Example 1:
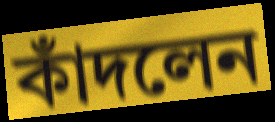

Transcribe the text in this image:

কাঁদলেন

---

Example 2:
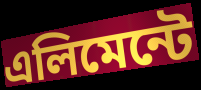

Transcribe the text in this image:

এলিমেন্টে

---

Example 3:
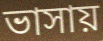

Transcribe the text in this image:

ভাসায়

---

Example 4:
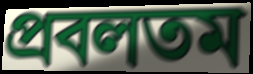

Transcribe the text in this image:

প্রবলতম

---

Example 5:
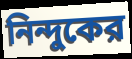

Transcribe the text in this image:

নিন্দুকের